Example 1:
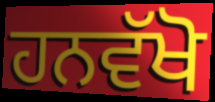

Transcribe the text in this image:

ਹਨਵੱਖੋ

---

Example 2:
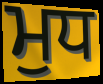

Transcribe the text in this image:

ਮੁਧ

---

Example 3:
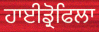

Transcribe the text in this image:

ਹਾਈਡ੍ਰੋਫਿਲਾ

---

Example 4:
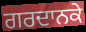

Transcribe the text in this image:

ਗਰਦਾਨਕੇ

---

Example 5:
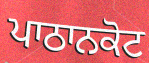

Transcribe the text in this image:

ਪਾਠਾਨਕੋਟ